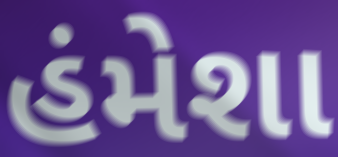
હંમેશા